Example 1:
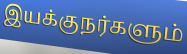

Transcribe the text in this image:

இயக்குநர்களும்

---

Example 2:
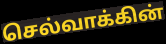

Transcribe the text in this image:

செல்வாக்கின்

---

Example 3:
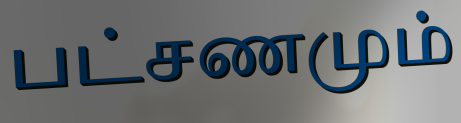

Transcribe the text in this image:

பட்சணமும்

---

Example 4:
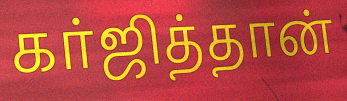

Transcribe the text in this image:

கர்ஜித்தான்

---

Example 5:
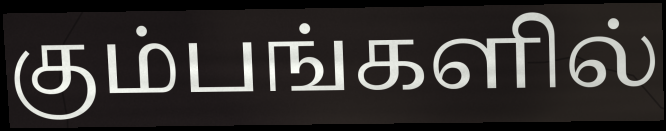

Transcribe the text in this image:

கும்பங்களில்